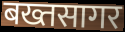
बख्तसागर